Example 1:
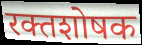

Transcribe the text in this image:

रक्तशोषक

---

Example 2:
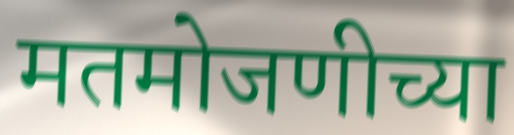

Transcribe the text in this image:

मतमोजणीच्या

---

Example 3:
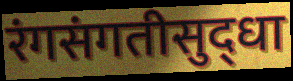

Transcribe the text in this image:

रंगसंगतीसुद्धा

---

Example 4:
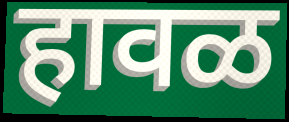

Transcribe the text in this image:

हावळ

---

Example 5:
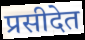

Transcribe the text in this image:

प्रसीदेत